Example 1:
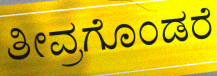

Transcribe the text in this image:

ತೀವ್ರಗೊಂಡರೆ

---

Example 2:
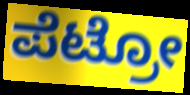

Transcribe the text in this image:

ಪೆಟ್ರೋ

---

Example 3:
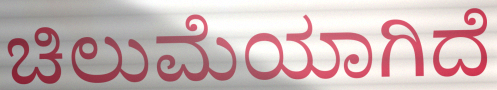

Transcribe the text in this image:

ಚಿಲುಮೆಯಾಗಿದೆ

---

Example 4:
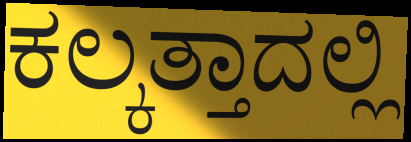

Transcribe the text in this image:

ಕಲ್ಕತ್ತಾದಲ್ಲಿ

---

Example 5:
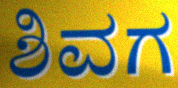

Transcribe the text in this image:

ಶಿವಗ